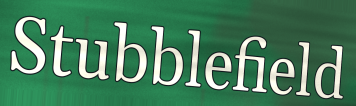
Stubblefield